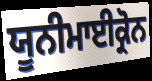
ਯੂਨੀਮਾਈਕ੍ਰੋਨ